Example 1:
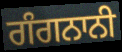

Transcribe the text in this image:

ਗੰਗਨਾਨੀ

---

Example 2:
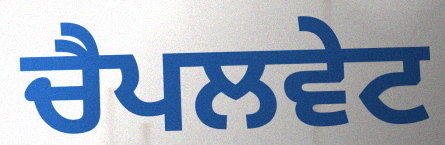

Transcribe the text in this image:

ਚੈਪਲਵੇਟ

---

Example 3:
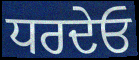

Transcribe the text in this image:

ਧਰਦੇਓ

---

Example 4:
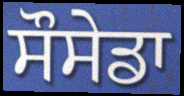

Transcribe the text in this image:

ਸੌਸੇਡਾ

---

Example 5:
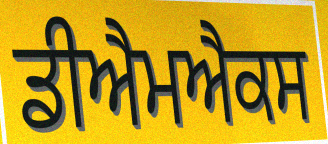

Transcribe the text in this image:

ਡੀਐਮਐਕਸ